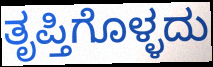
ತೃಪ್ತಿಗೊಳ್ಳದು